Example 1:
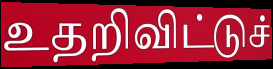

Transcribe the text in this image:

உதறிவிட்டுச்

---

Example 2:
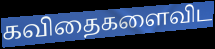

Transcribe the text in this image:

கவிதைகளைவிட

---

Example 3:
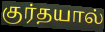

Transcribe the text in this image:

குர்தயால்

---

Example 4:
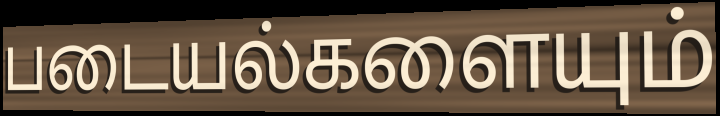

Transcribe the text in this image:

படையல்களையும்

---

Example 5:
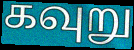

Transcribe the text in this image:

கவுறு